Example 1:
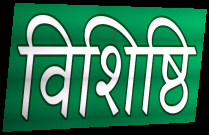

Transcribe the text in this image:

विशिष्ठि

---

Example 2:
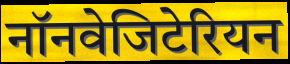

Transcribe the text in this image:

नॉनवेजिटेरियन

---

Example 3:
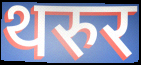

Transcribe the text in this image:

थरुर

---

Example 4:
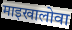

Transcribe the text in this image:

माइखालोवा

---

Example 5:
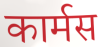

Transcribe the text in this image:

कार्मस